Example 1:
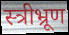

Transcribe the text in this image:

स्त्रीभ्रूण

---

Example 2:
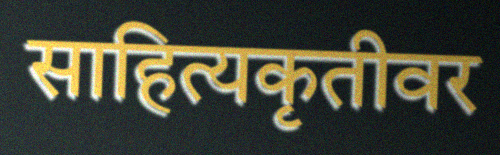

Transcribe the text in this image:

साहित्यकृतीवर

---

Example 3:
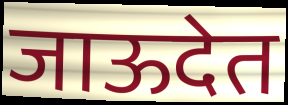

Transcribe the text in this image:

जाऊदेत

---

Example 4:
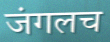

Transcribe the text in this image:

जंगलच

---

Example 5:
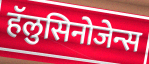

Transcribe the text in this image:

हॅलुसिनोजेन्स